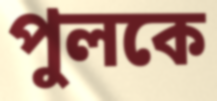
পুলকে